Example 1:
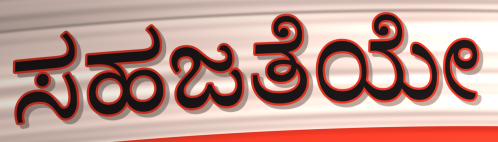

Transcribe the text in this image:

ಸಹಜತೆಯೇ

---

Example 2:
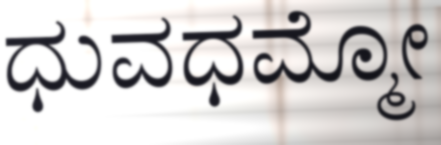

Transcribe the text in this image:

ಧುವಧಮ್ಮೋ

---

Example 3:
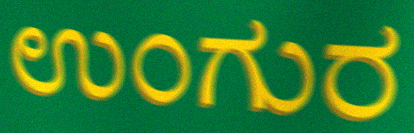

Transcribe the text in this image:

ಉಂಗುರ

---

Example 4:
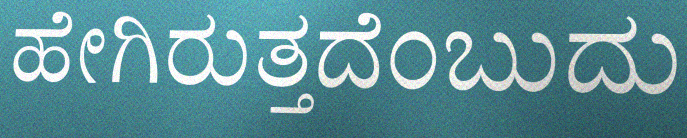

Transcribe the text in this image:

ಹೇಗಿರುತ್ತದೆಂಬುದು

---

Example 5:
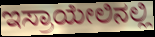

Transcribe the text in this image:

ಇಸ್ರಾಯೇಲಿನಲ್ಲಿ